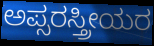
ಅಪ್ಸರಸ್ತ್ರೀಯರ